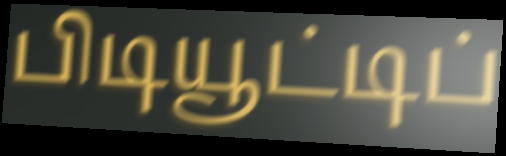
பிடியூட்டிப்